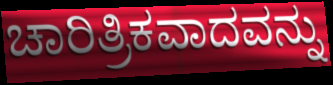
ಚಾರಿತ್ರಿಕವಾದವನ್ನು